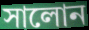
সালোন